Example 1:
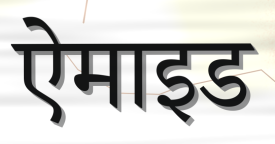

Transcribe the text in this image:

ऐमाइड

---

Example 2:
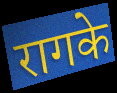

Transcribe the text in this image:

रागके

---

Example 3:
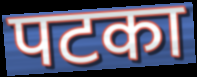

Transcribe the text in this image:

पटका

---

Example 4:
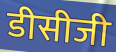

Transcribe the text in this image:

डीसीजी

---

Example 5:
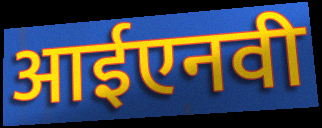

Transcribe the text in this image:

आईएनवी